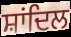
ਸ਼ਾਂਦਿਲ